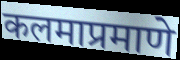
कलमाप्रमाणे